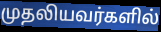
முதலியவர்களில்